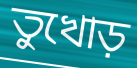
তুখোড়